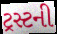
ટ્રસ્ટની